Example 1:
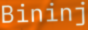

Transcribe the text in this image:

Bininj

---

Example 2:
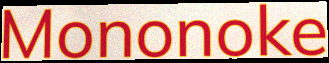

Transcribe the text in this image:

Mononoke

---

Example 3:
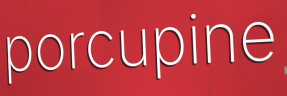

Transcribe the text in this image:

porcupine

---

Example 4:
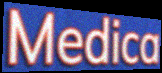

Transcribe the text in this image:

Medica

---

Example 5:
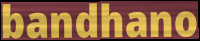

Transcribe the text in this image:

bandhano